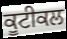
ਕੂਟੀਕਲ